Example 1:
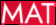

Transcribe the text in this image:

MAT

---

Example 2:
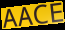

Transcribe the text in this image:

AACE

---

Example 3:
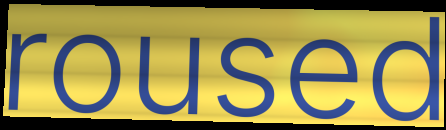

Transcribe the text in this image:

roused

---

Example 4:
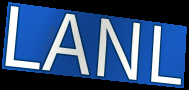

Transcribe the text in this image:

LANL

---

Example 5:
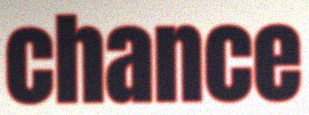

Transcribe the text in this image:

chance